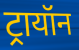
ट्रायॉन